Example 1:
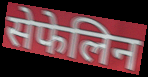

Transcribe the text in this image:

सेफेलिन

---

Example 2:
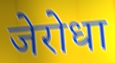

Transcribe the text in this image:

जेरोधा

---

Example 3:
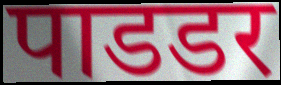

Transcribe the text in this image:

पाडडर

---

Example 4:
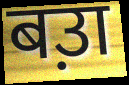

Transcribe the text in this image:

बउ़ा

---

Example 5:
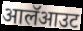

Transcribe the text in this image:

आलॅआउट